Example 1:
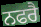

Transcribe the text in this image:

ਨਫਰੈ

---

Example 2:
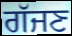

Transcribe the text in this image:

ਗੱਜਣ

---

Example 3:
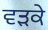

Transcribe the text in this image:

ਵੜਕੇ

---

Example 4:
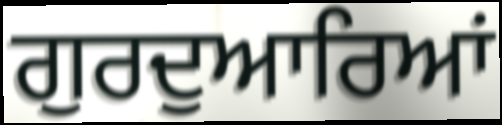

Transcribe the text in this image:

ਗੁਰਦੁਆਰਿਆਂ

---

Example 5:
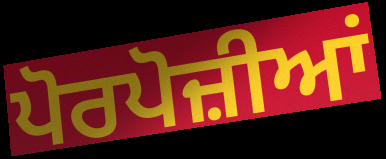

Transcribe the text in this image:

ਪੋਰਪੋਜ਼ੀਆਂ